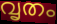
വൃതം